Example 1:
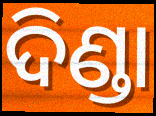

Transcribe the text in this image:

ଦିଣ୍ଡା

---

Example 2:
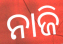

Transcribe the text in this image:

ନାଜି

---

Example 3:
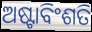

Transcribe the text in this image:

ଅଷ୍ଟାବିଂଶତି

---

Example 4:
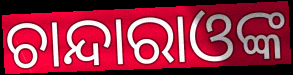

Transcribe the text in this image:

ଚାନ୍ଦାରାଓଙ୍କ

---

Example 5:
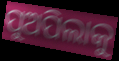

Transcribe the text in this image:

ପୁଅପିଲାକୁ